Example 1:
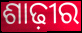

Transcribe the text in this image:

ଶାଢ଼ୀର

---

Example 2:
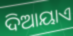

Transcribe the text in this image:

ଦିଆୟାଏ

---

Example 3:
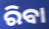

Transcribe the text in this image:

ରିବା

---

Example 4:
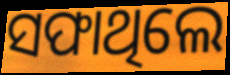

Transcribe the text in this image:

ସଫାଥିଲେ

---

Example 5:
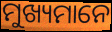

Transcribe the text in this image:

ମୁଖ୍ୟମାନେ